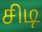
சிடி